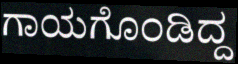
ಗಾಯಗೊಂಡಿದ್ದ